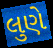
લુણે